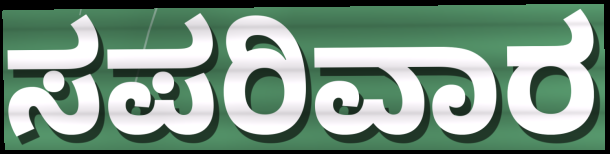
ಸಪರಿವಾರ